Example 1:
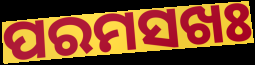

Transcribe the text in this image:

ପରମସଖଃ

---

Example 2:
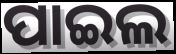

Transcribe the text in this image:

ପାଇଲ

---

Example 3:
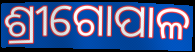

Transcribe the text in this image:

ଶ୍ରୀଗୋପାଳ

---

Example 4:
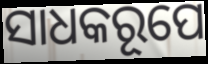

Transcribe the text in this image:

ସାଧକରୂପେ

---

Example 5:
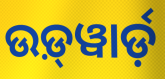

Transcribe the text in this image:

ଉଡ଼୍‍ୱାର୍ଡ଼